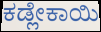
ಕಡ್ಲೇಕಾಯಿ